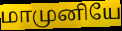
மாமுனியே